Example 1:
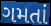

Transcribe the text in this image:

ગમતાં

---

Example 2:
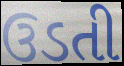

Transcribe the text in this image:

ઉડતી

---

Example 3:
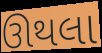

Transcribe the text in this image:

ઊથલા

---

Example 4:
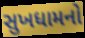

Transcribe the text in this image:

સુખધામનો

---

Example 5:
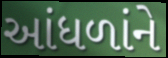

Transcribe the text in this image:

આંધળાંને